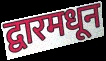
द्वारमधून